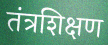
तंत्रशिक्षण